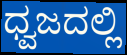
ಧ್ವಜದಲ್ಲಿ